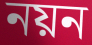
নয়ন